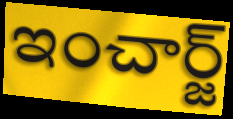
ఇంచార్జ్